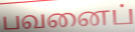
பவனைப்